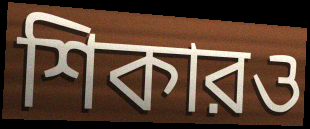
শিকারও